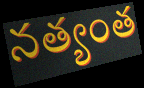
నత్యంత